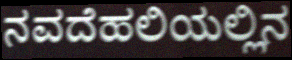
ನವದೆಹಲಿಯಲ್ಲಿನ